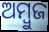
ଅମ୍ୱୁଜ